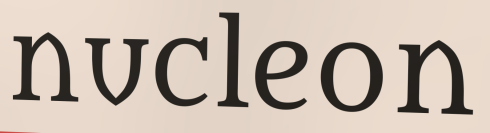
nucleon